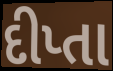
દીપ્તા